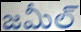
జమీల్